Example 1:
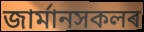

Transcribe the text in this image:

জাৰ্মানসকলৰ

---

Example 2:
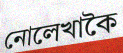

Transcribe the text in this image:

নোলেখাকৈ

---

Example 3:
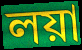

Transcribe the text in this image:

লয়া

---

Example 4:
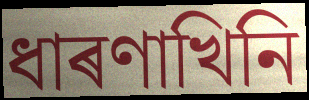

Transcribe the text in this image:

ধাৰণাখিনি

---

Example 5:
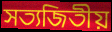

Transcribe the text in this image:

সত্যজিতীয়